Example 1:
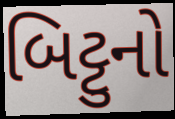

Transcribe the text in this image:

બિટ્ટુનો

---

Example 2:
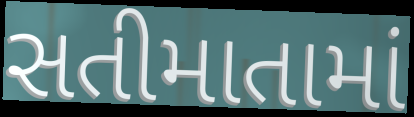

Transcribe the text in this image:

સતીમાતામાં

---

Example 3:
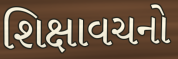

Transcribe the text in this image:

શિક્ષાવચનો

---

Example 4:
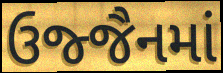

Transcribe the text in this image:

ઉજ્જૈનમાં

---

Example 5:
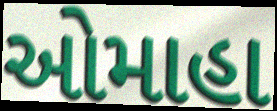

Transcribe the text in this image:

ઓમાહા